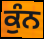
ਕੁੰਨ